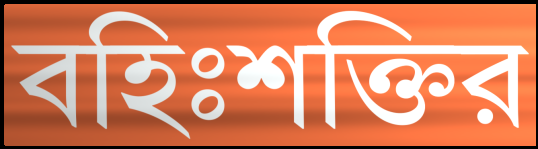
বহিঃশক্তির